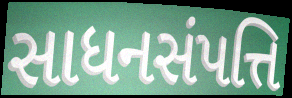
સાધનસંપત્તિ